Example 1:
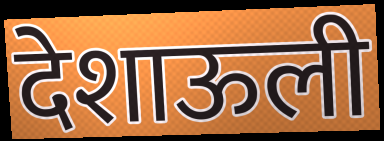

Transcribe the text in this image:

देशाऊली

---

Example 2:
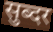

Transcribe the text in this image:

सुब्दर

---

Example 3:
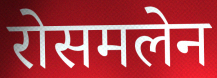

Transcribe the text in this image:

रोसमलेन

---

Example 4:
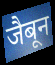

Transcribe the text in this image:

जैबून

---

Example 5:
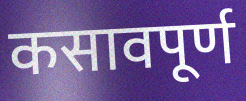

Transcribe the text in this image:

कसावपूर्ण